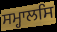
ਸਮ੍ਹ੍ਹਾਲਸਿ